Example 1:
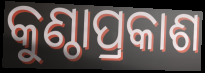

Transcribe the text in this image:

କୁଣ୍ଠାପ୍ରକାଶ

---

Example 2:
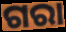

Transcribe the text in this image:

ଗରା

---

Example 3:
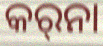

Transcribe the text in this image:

କର୍‍ନା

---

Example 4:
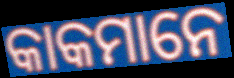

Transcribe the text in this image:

କାକମାନେ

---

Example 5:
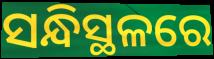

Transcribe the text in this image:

ସନ୍ଧିସ୍ଥଳରେ